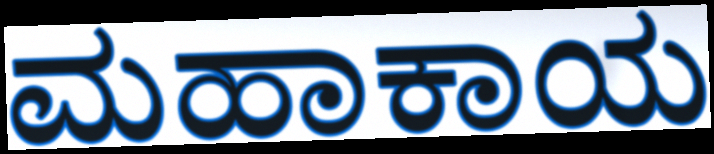
ಮಹಾಕಾಯ